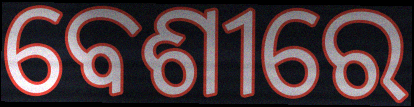
ବେଶୀରେ